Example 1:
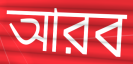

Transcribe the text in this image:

আরব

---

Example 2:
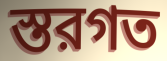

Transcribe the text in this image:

স্তরগত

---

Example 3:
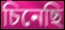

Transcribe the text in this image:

চিনেছি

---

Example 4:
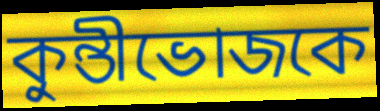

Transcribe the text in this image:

কুন্তীভোজকে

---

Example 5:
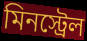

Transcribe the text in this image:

মিনস্ট্রেল